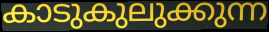
കാടുകുലുക്കുന്ന